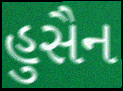
હુસૈન